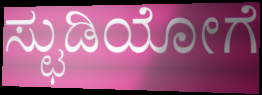
ಸ್ಟುಡಿಯೋಗೆ